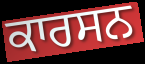
ਕਾਰਸਨ